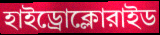
হাইড্রোক্লোরাইড